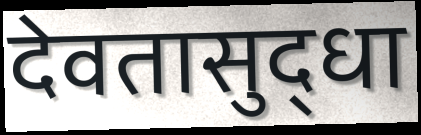
देवतासुद्धा